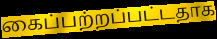
கைப்பற்றப்பட்டதாக